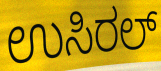
ಉಸಿರಲ್